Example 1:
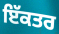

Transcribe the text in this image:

ਇੱਕਤਰ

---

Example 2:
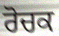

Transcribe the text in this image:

ਰੋਚਕ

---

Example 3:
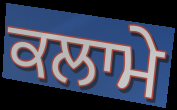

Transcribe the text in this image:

ਕਲਾਮੇ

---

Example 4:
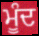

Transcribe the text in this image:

ਮੂੰਦ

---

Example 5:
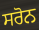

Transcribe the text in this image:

ਸਰੋਨ